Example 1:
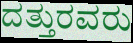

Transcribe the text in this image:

ದತ್ತುರವರು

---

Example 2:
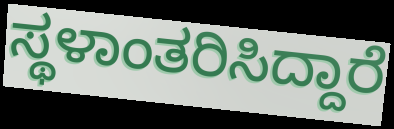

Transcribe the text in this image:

ಸ್ಥಳಾಂತರಿಸಿದ್ದಾರೆ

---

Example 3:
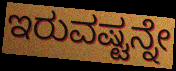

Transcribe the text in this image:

ಇರುವಷ್ಟನ್ನೇ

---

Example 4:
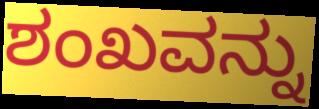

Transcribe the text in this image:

ಶಂಖವನ್ನು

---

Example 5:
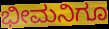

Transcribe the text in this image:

ಭೀಮನಿಗೂ